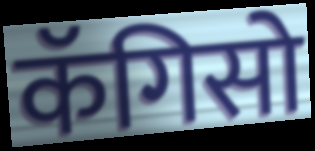
कॅगिसो